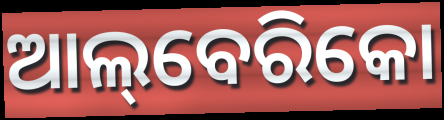
ଆଲ୍‌ବେରିକୋ